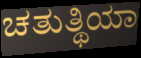
ಚತುತ್ಥಿಯಾ